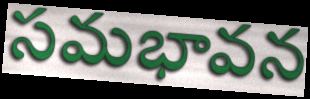
సమభావన